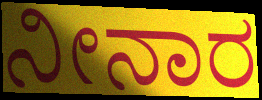
ನೀನಾರ